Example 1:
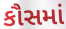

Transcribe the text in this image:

કૌસમાં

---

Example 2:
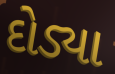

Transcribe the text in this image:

દોડ્યા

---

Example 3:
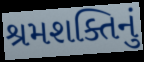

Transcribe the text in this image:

શ્રમશક્તિનું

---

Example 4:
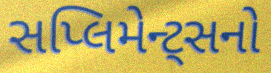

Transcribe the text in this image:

સપ્લિમેન્ટ્સનો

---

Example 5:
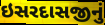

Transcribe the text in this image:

ઇસરદાસજીનું